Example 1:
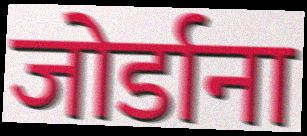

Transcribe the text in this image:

जोर्डाना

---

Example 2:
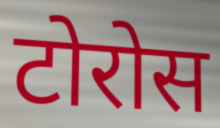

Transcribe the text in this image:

टोरोस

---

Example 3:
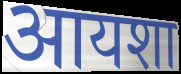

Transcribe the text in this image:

आयशा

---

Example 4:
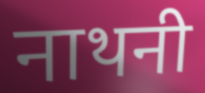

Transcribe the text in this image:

नाथनी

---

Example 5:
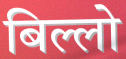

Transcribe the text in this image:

बिल्लो